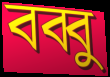
বব্বু